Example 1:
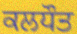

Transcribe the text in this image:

ਕਲਧੌਤ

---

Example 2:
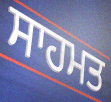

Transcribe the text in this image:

ਸਾਹਮਤ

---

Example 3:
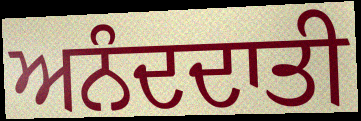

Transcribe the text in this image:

ਅਨੰਦਦਾਤੀ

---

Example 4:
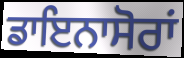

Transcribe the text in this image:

ਡਾਇਨਾਸੋਰਾਂ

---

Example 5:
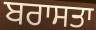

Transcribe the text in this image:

ਬਰਾਸਤਾ